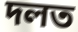
দলত